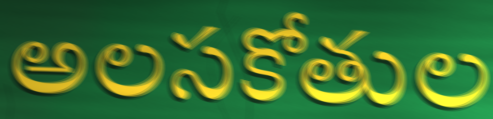
అలసకోతుల